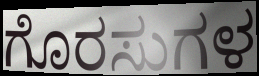
ಗೊರಸುಗಳ